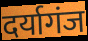
दर्यागंज